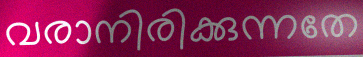
വരാനിരിക്കുന്നതേ